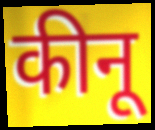
कीनू